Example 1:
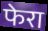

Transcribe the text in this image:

फेरा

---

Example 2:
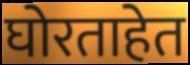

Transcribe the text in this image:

घोरताहेत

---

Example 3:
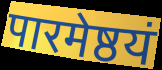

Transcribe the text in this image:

पारमेष्ठयं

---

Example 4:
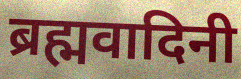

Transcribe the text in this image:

ब्रह्मवादिनी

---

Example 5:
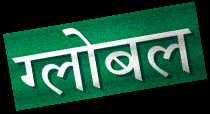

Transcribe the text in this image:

ग्लोबल